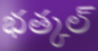
భత్కల్